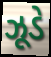
ઝૂડે